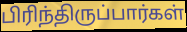
பிரிந்திருப்பார்கள்